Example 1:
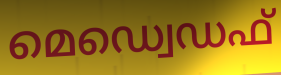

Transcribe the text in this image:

മെഡ്വെഡഫ്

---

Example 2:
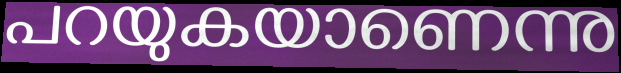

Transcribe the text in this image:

പറയുകയാണെന്നു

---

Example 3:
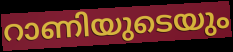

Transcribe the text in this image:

റാണിയുടെയും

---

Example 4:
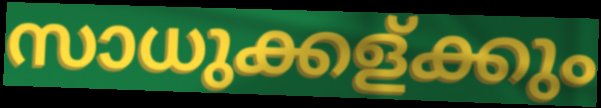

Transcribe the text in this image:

സാധുക്കള്ക്കും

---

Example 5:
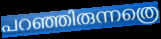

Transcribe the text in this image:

പറഞ്ഞിരുന്നത്രെ